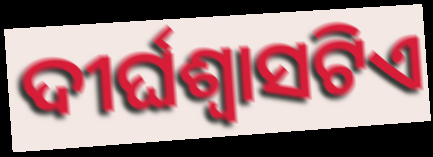
ଦୀର୍ଘଶ୍ୱାସଟିଏ